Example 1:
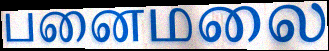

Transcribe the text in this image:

பனைமலை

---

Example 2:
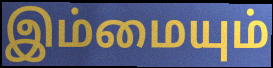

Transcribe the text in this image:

இம்மையும்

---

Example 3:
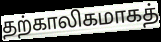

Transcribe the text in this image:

தற்காலிகமாகத்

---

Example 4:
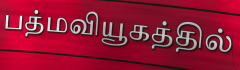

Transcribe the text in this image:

பத்மவியூகத்தில்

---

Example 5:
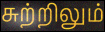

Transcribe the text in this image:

சுற்றிலும்